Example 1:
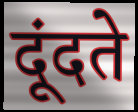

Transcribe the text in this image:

दूंदते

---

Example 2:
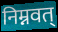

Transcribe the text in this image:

निम्नवत्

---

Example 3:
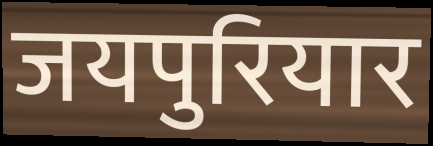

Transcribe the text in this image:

जयपुरियार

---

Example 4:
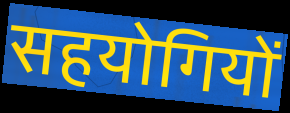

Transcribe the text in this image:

सहयोगियों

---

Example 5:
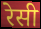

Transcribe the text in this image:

रेसी